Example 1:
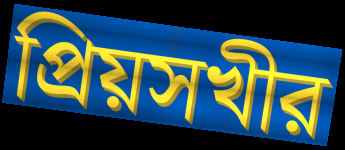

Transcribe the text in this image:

প্রিয়সখীর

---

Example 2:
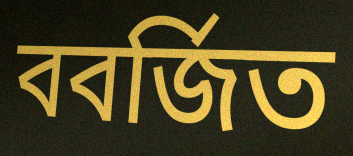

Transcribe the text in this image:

ববর্জিত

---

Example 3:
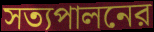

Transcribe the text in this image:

সত্যপালনের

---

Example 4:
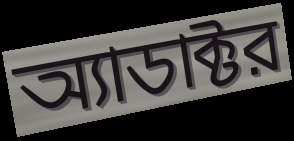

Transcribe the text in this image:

অ্যাডাক্টর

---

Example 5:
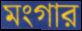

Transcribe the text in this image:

মংগার